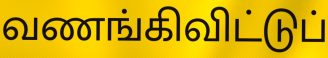
வணங்கிவிட்டுப்